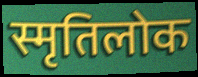
स्मृतिलोक